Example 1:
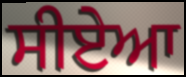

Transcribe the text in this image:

ਸੀਏਆ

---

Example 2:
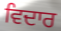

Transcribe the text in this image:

ਵਿਦਾਰ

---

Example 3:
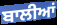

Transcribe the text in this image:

ਬਾਲੀਆਂ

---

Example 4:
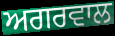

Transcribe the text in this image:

ਅਗਰਵਾਲ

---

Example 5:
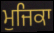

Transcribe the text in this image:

ਮੁਜਿਕਾ